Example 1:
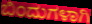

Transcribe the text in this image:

ಬಿಂದುಗಳಾಗಿ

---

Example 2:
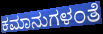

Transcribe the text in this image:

ಕಮಾನುಗಳಂತೆ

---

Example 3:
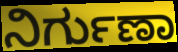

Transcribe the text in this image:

ನಿರ್ಗುಣಾ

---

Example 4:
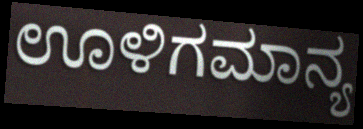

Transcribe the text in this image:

ಊಳಿಗಮಾನ್ಯ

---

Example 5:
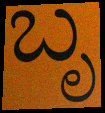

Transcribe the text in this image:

ಬೃ